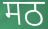
मठ